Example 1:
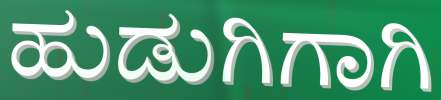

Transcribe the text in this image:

ಹುಡುಗಿಗಾಗಿ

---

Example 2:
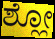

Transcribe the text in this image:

ಶ್ಲೋ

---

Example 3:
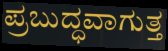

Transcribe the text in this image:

ಪ್ರಬುದ್ಧವಾಗುತ್ತ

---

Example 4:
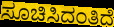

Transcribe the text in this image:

ಸೂಚಿಸಿದಂತಿದೆ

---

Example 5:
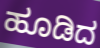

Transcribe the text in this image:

ಹೂಡಿದ